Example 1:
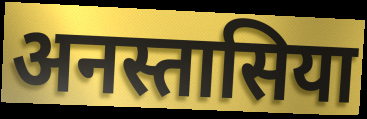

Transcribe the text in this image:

अनस्तासिया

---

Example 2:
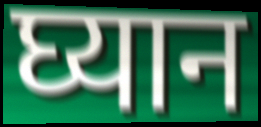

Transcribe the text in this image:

घ्यान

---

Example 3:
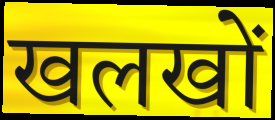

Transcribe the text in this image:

खलखों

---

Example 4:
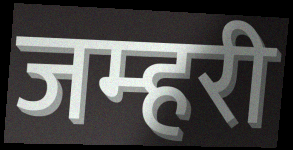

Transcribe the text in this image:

जम्हरी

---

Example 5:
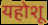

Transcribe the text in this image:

यहोशू